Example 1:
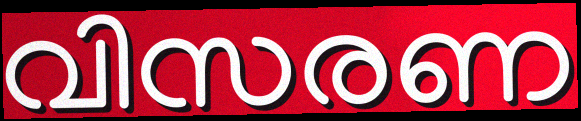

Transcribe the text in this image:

വിസരണ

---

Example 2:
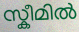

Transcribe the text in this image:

സ്കീമിൽ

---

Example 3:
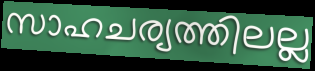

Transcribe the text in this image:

സാഹചര്യത്തിലല്ല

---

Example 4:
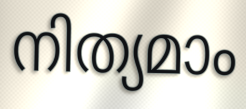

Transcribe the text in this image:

നിത്യമാം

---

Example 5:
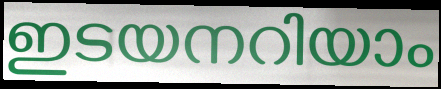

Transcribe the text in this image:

ഇടയനറിയാം